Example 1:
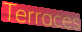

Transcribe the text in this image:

Terraces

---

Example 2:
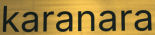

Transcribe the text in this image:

karanara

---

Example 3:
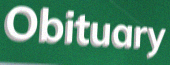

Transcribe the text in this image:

Obituary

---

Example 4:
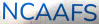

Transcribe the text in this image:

NCAAFS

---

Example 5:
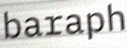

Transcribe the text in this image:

baraph